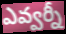
ఎవ్వర్నీ